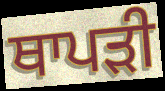
ਥਾਪੜੀ